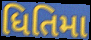
ધિતિમા